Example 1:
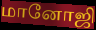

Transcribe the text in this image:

மானோஜி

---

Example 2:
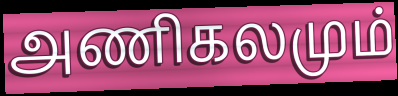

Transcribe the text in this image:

அணிகலமும்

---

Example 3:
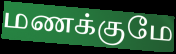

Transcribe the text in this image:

மணக்குமே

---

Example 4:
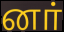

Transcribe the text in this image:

னர்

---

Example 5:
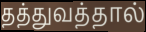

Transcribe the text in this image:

தத்துவத்தால்